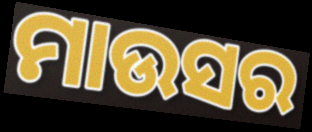
ମାଉସର